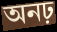
অনঢ়